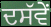
ਦਸੱਵੇਂ